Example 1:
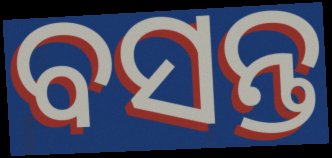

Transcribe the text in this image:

ବସନ୍ତ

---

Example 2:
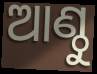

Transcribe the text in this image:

ଆଣ୍ଠୁ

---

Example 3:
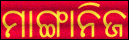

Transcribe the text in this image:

ମାଙ୍ଗାନିଜ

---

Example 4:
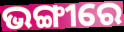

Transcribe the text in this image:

ଭଙ୍ଗୀରେ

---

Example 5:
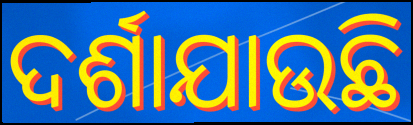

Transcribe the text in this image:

ଦର୍ଶାଯାଉଛି